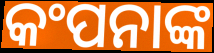
କଂପନାଙ୍କ